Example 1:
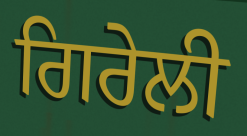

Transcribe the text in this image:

ਗਿਰੇਲੀ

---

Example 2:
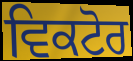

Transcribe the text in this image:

ਵਿਕਟੋਰ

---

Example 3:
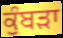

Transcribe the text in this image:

ਕੁੰਬੜਾ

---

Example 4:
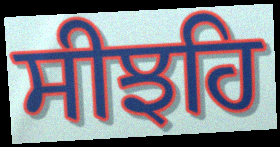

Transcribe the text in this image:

ਸੀਝਹਿ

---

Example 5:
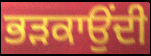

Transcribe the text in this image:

ਭੜਕਾਉਂਦੀ